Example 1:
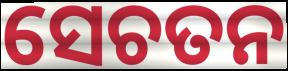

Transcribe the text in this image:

ସେଚତନ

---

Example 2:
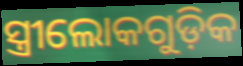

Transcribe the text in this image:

ସ୍ତ୍ରୀଲୋକଗୁଡ଼ିକ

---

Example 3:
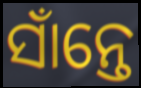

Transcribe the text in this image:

ସାଁନ୍ତେ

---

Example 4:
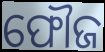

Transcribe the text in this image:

ଫୌଜ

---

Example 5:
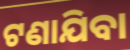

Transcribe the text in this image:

ଟଣାଯିବା